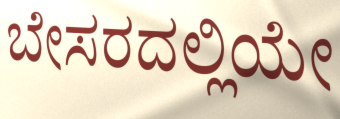
ಬೇಸರದಲ್ಲಿಯೇ